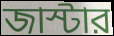
জাস্টার